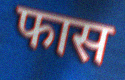
फास